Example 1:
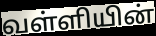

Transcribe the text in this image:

வள்ளியின்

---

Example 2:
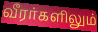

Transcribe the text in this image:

வீரர்களிலும்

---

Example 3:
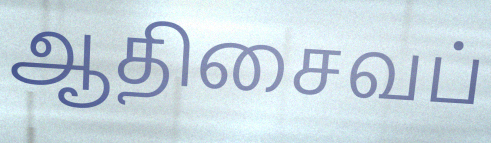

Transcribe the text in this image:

ஆதிசைவப்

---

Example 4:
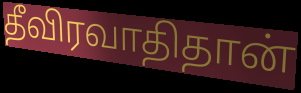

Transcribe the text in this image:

தீவிரவாதிதான்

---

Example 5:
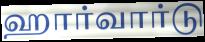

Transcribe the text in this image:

ஹார்வார்டு